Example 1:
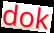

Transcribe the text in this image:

dok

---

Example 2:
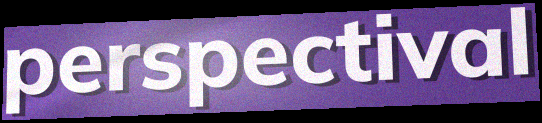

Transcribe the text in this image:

perspectival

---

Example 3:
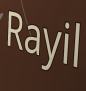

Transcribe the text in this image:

Rayil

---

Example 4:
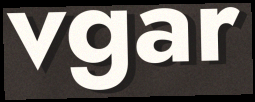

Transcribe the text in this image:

vgar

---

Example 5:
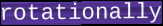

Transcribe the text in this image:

rotationally